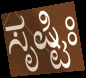
ಸೃಷ್ಟಿಃ